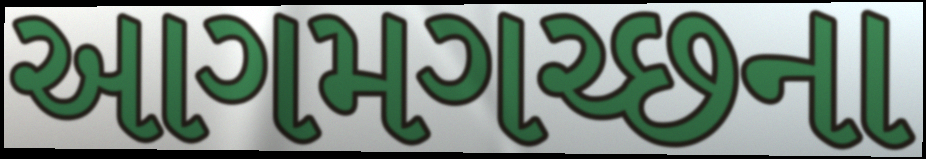
આગમગચ્છના